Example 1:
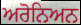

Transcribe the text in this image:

ਅਰੋਨਿਅਨ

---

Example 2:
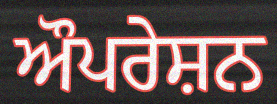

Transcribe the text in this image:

ਔਪਰੇਸ਼ਨ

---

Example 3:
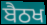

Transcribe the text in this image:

ਬੈਠਖ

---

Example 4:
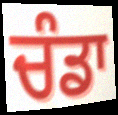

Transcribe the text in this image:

ਚੰਡਾ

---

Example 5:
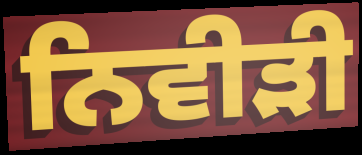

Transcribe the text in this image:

ਨਿਵੀੜੀ